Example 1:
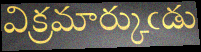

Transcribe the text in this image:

విక్రమార్కుఁడు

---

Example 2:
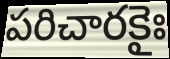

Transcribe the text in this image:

పరిచారకైః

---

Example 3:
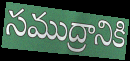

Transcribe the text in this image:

సముద్రానికి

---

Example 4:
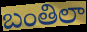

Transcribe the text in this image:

బంతిలా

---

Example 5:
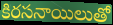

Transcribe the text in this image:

కిరసనాయిలుతో